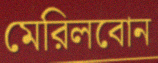
মেরিলবোন